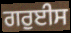
ਗਰੁਈਸ